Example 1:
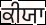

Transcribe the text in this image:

ਕੀਯਾ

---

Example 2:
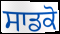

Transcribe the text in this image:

ਸਾਡਕੋ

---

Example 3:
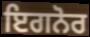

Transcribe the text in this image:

ਇਗਨੋਰ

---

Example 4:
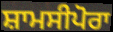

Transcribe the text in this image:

ਸ਼ਾਮਸੀਪੋਰਾ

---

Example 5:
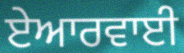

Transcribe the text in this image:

ਏਆਰਵਾਈ